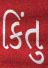
કિંતુ